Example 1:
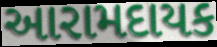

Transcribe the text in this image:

આરામદાયક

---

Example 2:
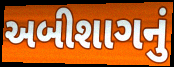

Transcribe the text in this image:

અબીશાગનું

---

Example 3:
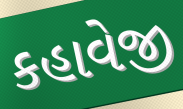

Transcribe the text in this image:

કહાવેજી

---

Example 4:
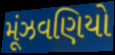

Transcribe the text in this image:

મૂંઝવણિયો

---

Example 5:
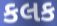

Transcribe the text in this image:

કલક